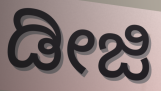
ಡೀಜಿ